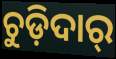
ଚୁଡ଼ିଦାର୍